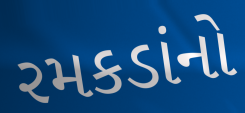
રમકડાંનો